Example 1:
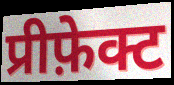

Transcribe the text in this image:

प्रीफ़ेक्ट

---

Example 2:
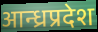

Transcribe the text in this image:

आन्ध्रप्रदेश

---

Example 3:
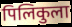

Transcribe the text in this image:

पिलिकुला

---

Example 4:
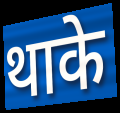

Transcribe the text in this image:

थाके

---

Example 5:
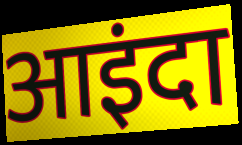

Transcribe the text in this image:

आइंदा